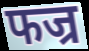
फज्र